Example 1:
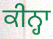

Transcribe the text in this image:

ਕੀਨ੍ਹ੍ਹਾ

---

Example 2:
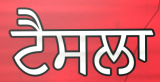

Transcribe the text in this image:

ਟੈਸਲਾ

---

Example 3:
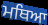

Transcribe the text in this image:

ਮਥਿਆ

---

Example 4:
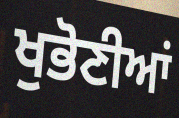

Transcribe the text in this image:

ਖੁਭੋਣੀਆਂ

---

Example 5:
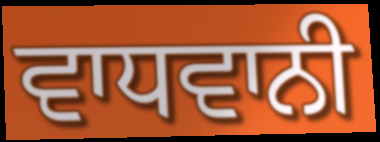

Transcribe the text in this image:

ਵਾਧਵਾਨੀ